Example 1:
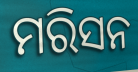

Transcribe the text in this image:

ମରିସନ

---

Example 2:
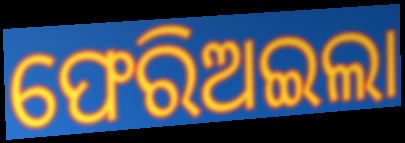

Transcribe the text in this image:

ଫେରିଅଇଲା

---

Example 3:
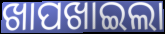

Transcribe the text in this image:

ଖାପଖାଇଲା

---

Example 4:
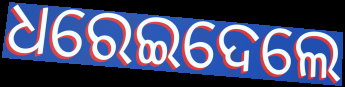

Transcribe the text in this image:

ଧରେଇଦେଲେ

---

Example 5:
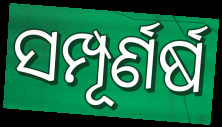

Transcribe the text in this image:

ସମ୍ପୂର୍ଣର୍ଷ